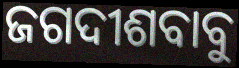
ଜଗଦୀଶବାବୁ